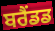
ਬਰੈਂਡਡ